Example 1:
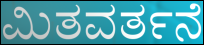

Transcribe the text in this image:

ಮಿತವರ್ತನೆ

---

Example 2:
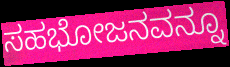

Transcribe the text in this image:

ಸಹಭೋಜನವನ್ನೂ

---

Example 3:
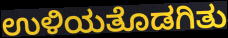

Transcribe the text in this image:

ಉಳಿಯತೊಡಗಿತು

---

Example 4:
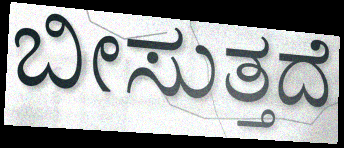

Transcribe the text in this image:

ಬೀಸುತ್ತದೆ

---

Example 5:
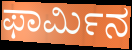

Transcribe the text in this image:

ಫಾರ್ಮಿನ